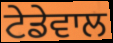
ਟੇਡੇਵਾਲ